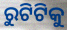
ରୁଟିଟିକୁ